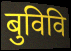
बुविवि